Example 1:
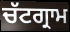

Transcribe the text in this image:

ਚੱਟਗ੍ਰਾਮ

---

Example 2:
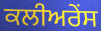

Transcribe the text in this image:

ਕਲੀਅਰੇਂਸ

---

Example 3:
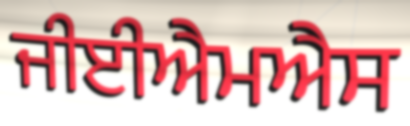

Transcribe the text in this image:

ਜੀਈਐਮਐਸ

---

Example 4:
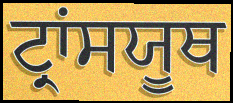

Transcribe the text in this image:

ਟ੍ਰਾਂਸਯੂਥ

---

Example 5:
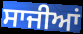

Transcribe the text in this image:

ਸਾਜੀਆਂ